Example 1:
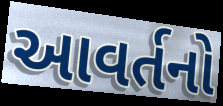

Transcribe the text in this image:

આવર્તનો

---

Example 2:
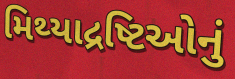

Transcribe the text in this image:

મિથ્યાદ્રષ્ટિઓનું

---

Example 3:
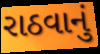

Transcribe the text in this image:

રાઠવાનું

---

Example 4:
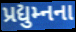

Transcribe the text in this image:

પ્રદ્યુમ્નના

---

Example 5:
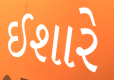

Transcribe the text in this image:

ઈશારે